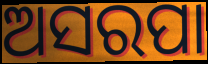
ଅସରପା